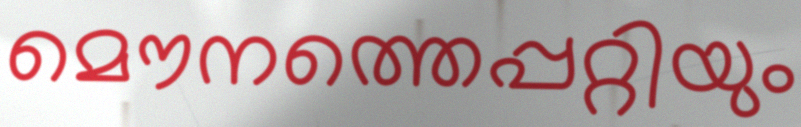
മൌനത്തെപ്പറ്റിയും